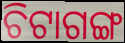
ଚିଟାଗଙ୍ଗ